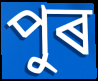
পুৰ